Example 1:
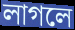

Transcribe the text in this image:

লাগলে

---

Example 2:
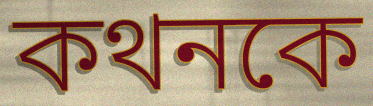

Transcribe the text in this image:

কথনকে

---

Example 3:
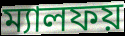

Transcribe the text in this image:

ম্যালফয়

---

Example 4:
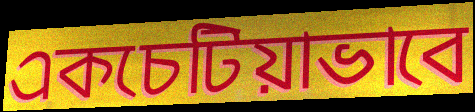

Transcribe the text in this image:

একচেটিয়াভাবে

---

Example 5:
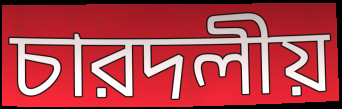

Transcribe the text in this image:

চারদলীয়